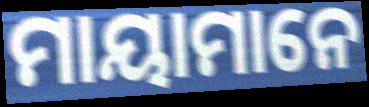
ମାୟାମାନେ